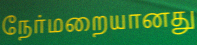
நேர்மறையானது